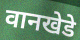
वानखेडे